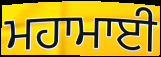
ਮਹਾਮਾਈ